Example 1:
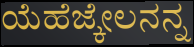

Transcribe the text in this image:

ಯೆಹೆಜ್ಕೇಲನನ್ನ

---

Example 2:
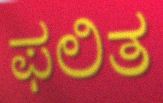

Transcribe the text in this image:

ಫಲಿತ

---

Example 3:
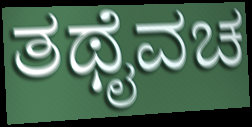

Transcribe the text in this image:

ತಥೈವಚ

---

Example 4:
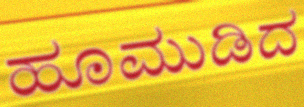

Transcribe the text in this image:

ಹೂಮುಡಿದ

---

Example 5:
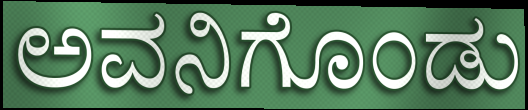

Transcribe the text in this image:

ಅವನಿಗೊಂಡು